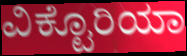
ವಿಕ್ಟೊರಿಯಾ